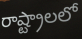
రాష్ట్రాలలో